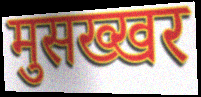
मुसख्खर